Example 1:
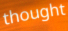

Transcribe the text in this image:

thought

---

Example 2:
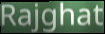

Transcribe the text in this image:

Rajghat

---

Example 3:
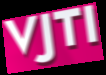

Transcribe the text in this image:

VJTI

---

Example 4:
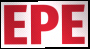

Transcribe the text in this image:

EPE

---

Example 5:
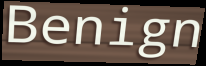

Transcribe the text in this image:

Benign